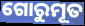
ଗୋରୁମୂତ